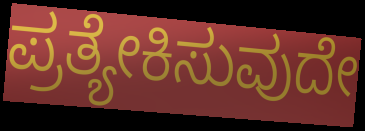
ಪ್ರತ್ಯೇಕಿಸುವುದೇ